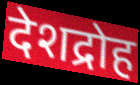
देशद्रोह